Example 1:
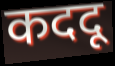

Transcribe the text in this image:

कददू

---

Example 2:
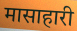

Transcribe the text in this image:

मासाहारी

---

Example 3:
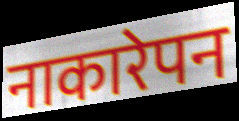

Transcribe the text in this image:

नाकारेपन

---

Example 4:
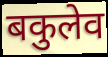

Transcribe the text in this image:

बकुलेव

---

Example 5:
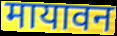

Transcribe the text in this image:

मायावन